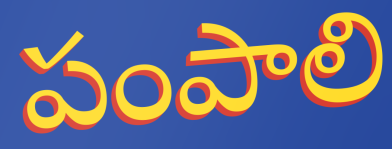
పంపాలి